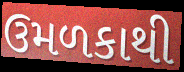
ઉમળકાથી